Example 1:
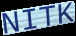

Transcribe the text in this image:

NITK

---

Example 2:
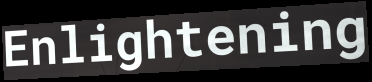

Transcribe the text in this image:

Enlightening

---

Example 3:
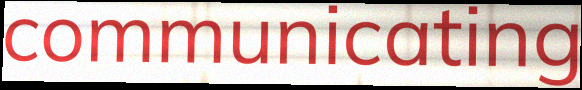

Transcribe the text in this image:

communicating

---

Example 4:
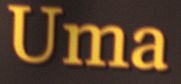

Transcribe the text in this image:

Uma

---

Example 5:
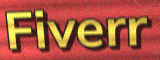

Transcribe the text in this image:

Fiverr